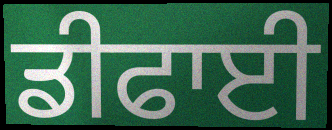
ਡੀਫਾਈ